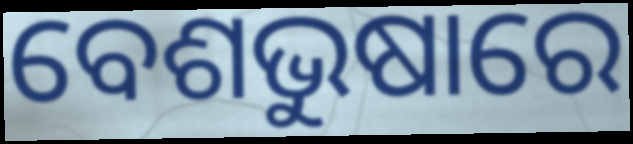
ବେଶଭୁଷାରେ